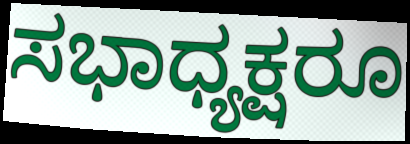
ಸಭಾಧ್ಯಕ್ಷರೂ